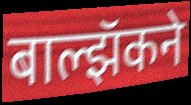
बाल्झॅकने